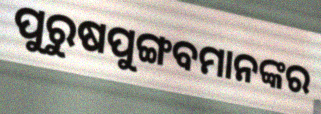
ପୁରୁଷପୁଙ୍ଗବମାନଙ୍କର